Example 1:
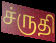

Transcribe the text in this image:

ச்ருதி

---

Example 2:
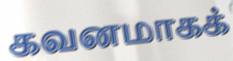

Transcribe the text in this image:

கவனமாகக்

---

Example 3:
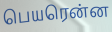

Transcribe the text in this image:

பெயரென்ன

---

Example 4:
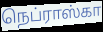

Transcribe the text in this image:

நெப்ராஸ்கா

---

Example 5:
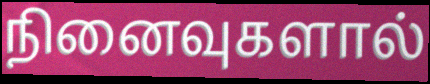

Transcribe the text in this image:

நினைவுகளால்